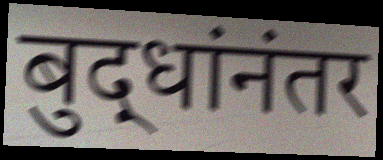
बुद्धांनंतर